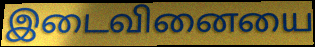
இடைவினையை